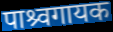
पाश्र्वगायक